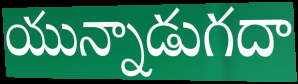
యున్నాడుగదా